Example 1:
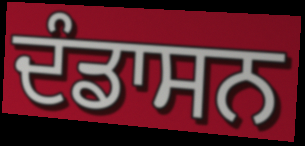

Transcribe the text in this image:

ਦੰਡਾਸਨ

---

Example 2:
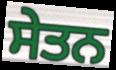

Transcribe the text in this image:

ਸੇਤਨ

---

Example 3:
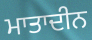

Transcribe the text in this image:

ਮਾਤਾਦੀਨ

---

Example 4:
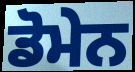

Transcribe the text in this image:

ਡੋਮੇਨ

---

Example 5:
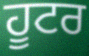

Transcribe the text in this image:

ਹੂਟਰ